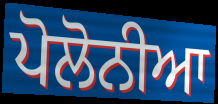
ਪੋਲੋਨੀਆ